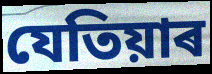
যেতিয়াৰ